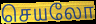
செயலோ